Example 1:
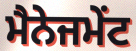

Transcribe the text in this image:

ਮੈਨੇਜਮੇੰਟ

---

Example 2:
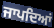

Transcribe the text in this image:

ਜਾਪਦਿਆਂ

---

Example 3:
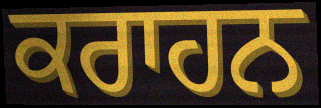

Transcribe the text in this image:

ਕਰਾਹਨ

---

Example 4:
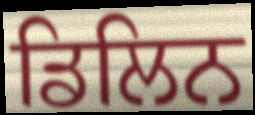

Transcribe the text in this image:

ਡਿਲਿਨ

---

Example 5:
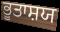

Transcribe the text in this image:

ਭੂਤਾਸ਼ਯ